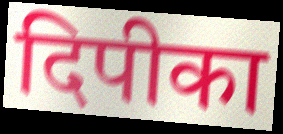
दिपीका